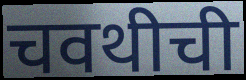
चवथीची